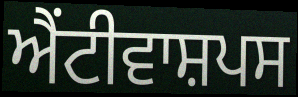
ਐਂਟੀਵਾਸ਼ਪਸ